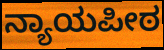
ನ್ಯಾಯಪೀಠ